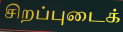
சிறப்புடைக்